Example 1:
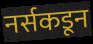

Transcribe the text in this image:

नर्सकडून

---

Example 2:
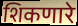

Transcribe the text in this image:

शिकणारे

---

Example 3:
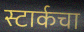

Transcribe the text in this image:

स्टार्कचा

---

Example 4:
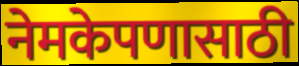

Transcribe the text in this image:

नेमकेपणासाठी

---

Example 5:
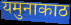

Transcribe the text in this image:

यमुनाकाठ